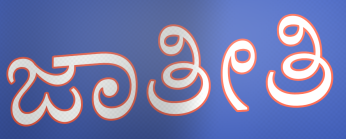
ಜಾತೀತಿ